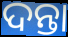
ଦନ୍ତା